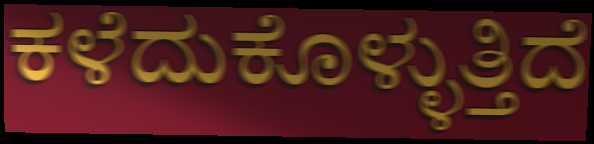
ಕಳೆದುಕೊಳ್ಳುತ್ತಿದೆ